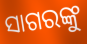
ସାଗରଙ୍କୁ